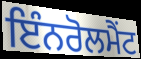
ਇੰਨਰੋਲਮੈਂਟ